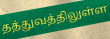
தத்துவத்திலுள்ள